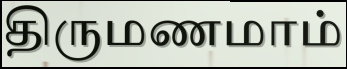
திருமணமாம்